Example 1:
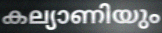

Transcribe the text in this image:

കല്യാണിയും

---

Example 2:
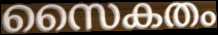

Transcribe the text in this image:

സൈകതം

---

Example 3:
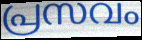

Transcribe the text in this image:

പ്രസവം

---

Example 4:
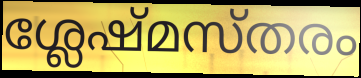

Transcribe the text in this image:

ശ്ലേഷ്മസ്തരം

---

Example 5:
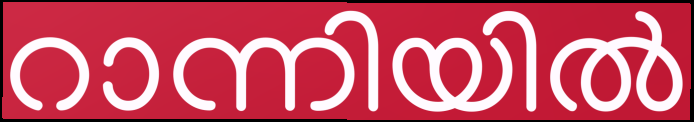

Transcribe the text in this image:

റാന്നിയിൽ